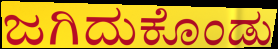
ಜಗಿದುಕೊಂಡು